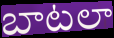
బాటలా